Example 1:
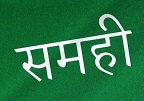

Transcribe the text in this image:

समही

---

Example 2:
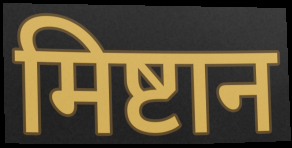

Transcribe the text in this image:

मिष्टान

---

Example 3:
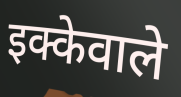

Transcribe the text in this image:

इक्केवाले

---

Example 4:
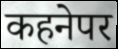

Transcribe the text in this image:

कहनेपर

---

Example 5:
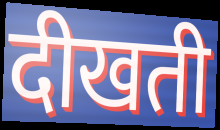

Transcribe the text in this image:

दीखती